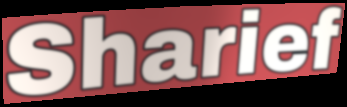
Sharief